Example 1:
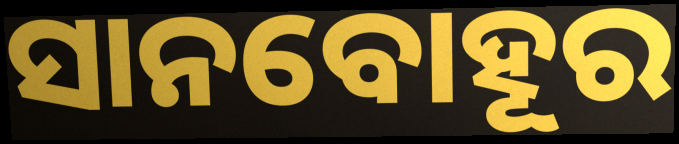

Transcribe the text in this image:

ସାନବୋହୂର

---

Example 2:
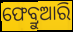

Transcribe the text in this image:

ଫେବ୍ରୁଆରି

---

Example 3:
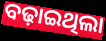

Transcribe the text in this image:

ବଢ଼ାଇଥିଲା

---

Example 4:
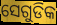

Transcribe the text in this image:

ସେଗୁଡିକ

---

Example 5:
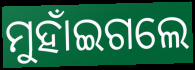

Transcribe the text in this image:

ମୁହାଁଇଗଲେ